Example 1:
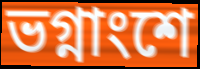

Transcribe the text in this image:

ভগ্নাংশে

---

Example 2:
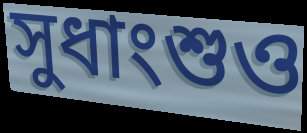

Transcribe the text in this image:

সুধাংশুও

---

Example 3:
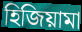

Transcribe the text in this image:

হিজিয়ামা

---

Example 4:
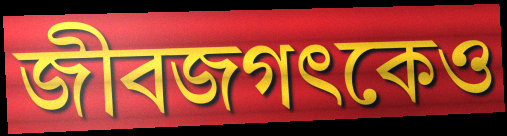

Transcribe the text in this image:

জীবজগৎকেও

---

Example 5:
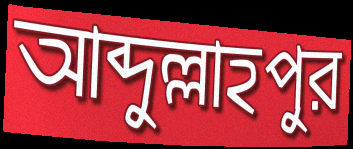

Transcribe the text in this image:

আব্দুল্লাহপুর